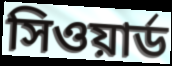
সিওয়ার্ড